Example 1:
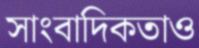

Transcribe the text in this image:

সাংবাদিকতাও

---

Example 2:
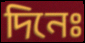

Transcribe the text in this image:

দিনেঃ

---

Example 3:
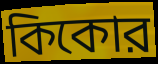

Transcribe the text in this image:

কিকোর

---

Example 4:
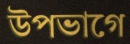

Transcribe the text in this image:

উপভাগে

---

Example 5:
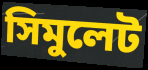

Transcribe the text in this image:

সিমুলেট